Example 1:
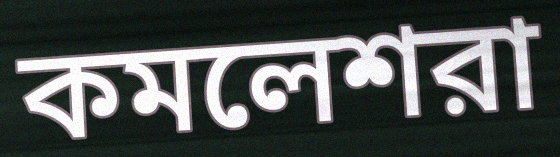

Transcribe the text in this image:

কমলেশরা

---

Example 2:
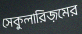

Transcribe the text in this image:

সেকুলারিজ়মের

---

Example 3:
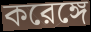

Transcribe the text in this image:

করেঙ্গে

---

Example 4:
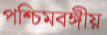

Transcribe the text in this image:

পশ্চিমবঙ্গীয়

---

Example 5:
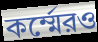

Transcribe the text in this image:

কর্ম্মেরও